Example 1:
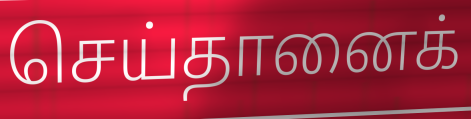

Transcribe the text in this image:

செய்தானைக்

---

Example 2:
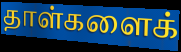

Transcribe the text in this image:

தாள்களைக்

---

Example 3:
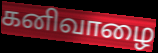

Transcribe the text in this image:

கனிவாழை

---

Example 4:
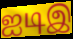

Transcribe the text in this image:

ஐடிஇ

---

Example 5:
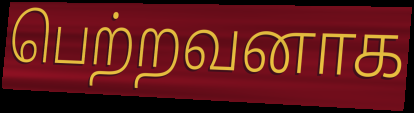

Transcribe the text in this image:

பெற்றவனாக